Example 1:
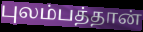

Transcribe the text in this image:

புலம்பத்தான்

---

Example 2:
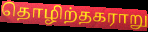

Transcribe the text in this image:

தொழிற்தகராறு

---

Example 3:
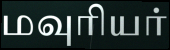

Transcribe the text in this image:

மவுரியர்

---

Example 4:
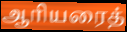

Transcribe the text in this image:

ஆரியரைத்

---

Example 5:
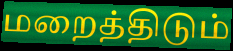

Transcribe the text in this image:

மறைத்திடும்